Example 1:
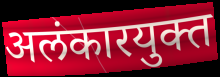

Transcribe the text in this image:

अलंकारयुक्त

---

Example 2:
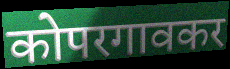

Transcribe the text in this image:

कोपरगावकर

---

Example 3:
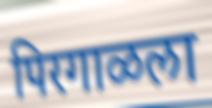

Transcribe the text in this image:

पिरगाळला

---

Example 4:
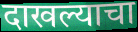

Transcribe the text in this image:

दाखल्याचा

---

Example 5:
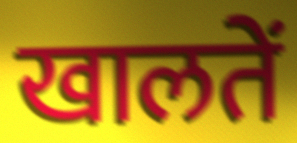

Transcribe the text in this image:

खालतें